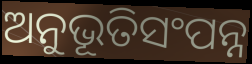
ଅନୁଭୂତିସଂପନ୍ନ